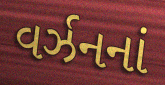
વર્ઝનનાં